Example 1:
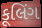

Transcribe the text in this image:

કૂલિંગ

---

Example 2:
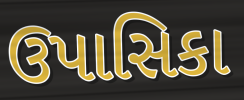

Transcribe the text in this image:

ઉપાસિકા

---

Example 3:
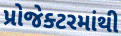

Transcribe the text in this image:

પ્રોજેક્ટરમાંથી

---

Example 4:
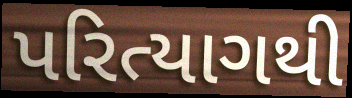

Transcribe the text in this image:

પરિત્યાગથી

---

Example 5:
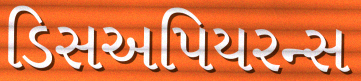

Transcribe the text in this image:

ડિસઅપિયરન્સ